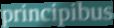
principibus